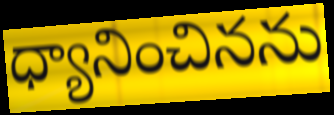
ధ్యానించినను